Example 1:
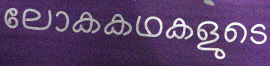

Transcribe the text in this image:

ലോകകഥകളുടെ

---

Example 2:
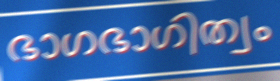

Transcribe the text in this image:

ഭാഗഭാഗിത്വം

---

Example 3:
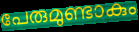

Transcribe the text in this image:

പേരുമുണ്ടാകും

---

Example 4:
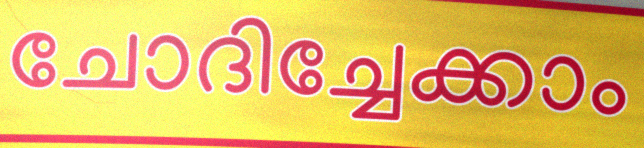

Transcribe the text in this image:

ചോദിച്ചേക്കാം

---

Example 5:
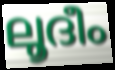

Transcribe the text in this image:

ലൂദീം